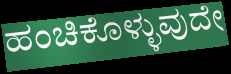
ಹಂಚಿಕೊಳ್ಳುವುದೇ